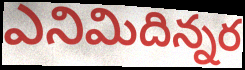
ఎనిమిదిన్నర